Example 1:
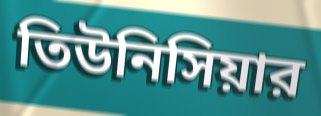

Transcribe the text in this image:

তিউনিসিয়ার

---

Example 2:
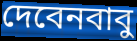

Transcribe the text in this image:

দেবেনবাবু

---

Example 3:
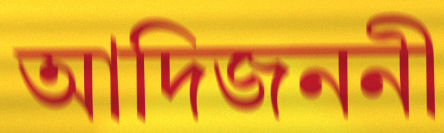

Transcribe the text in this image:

আদিজননী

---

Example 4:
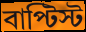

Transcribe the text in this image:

বাপ্টিস্ট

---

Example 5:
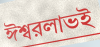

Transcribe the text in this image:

ঈশ্বরলাভই